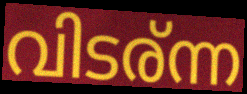
വിടര്ന്ന